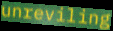
unreviling